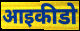
आइकीडो